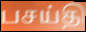
பசய்தி